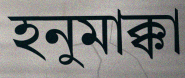
হনুমাক্কা